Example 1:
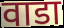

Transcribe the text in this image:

वाडा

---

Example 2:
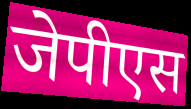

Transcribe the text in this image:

जेपीएस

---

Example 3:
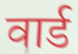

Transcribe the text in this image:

वार्ड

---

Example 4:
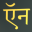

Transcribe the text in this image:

ऍन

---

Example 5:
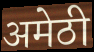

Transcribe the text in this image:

अमेठी